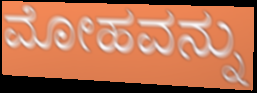
ಮೋಹವನ್ನು